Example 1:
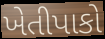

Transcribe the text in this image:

ખેતીપાકો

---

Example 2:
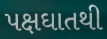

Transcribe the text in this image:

પક્ષઘાતથી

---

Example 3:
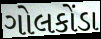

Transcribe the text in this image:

ગોલકોંડા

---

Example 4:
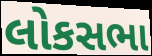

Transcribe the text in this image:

લોકસભા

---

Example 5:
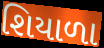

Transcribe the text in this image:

શિયાળા